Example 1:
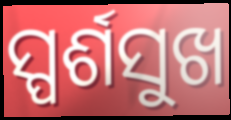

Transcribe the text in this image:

ସ୍ପର୍ଶସୁଖ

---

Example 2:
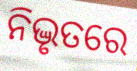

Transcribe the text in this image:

ନିଦ୍ଭୃତରେ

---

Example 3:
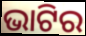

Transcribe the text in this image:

ଭାଟିର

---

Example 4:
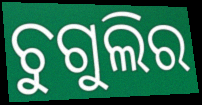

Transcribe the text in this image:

ଚୁଗୁଲିର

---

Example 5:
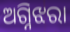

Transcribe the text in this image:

ଅଗ୍ନିଝରା